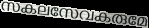
സകലസേവകരുമേ